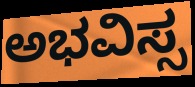
ಅಭವಿಸ್ಸ